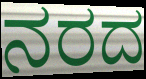
ನರದ